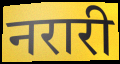
नरारी